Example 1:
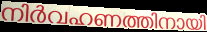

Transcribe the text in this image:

നിർവഹണത്തിനായി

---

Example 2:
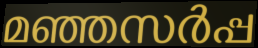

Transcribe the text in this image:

മഞ്ഞസർപ്പ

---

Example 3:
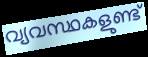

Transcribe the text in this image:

വ്യവസ്ഥകളുണ്ട്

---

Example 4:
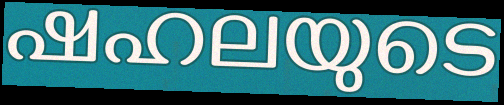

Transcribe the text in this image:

ഷഹലയുടെ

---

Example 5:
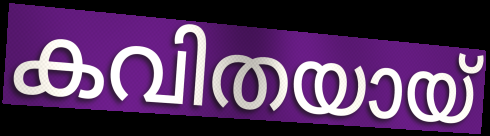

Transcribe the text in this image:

കവിതയായ്